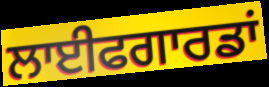
ਲਾਈਫਗਾਰਡਾਂ